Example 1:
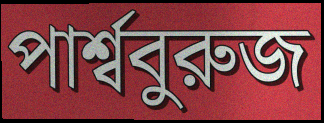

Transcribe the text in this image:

পার্শ্ববুরুজ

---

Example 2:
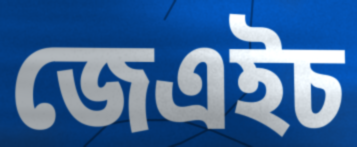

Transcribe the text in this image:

জেএইচ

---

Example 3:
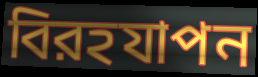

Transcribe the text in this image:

বিরহযাপন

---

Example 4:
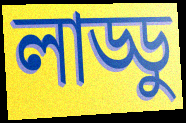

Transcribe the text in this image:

লাড্ডু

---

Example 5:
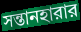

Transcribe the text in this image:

সন্তানহারার